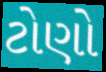
ટોણો